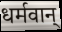
धर्मवान्